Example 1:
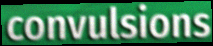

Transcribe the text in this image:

convulsions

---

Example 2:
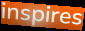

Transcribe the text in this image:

inspires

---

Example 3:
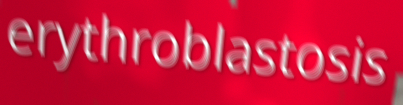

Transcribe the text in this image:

erythroblastosis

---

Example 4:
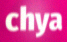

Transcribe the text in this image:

chya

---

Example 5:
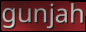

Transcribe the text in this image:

gunjah